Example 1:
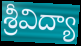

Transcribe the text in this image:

శ్రీవిద్యా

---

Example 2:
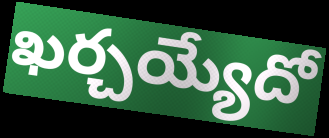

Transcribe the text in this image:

ఖర్చయ్యేదో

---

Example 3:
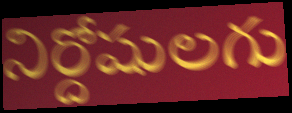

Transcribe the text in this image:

నిర్దోషులగు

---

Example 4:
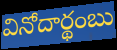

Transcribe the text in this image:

వినోదార్థంబు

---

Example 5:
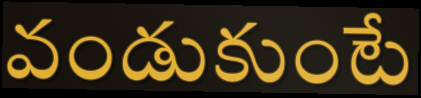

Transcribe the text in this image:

వండుకుంటే